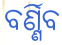
ବର୍ଣ୍ଣିବ